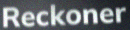
Reckoner